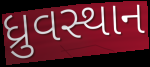
ધ્રુવસ્થાન